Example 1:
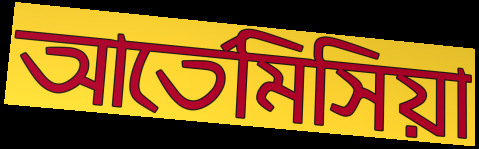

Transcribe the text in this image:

আর্তেমিসিয়া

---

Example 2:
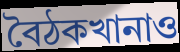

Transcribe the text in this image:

বৈঠকখানাও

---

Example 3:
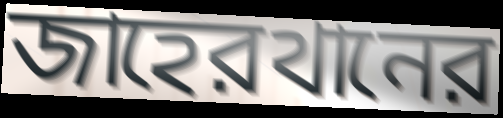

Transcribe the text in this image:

জাহেরথানের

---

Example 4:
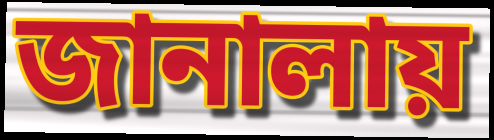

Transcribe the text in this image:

জানালায়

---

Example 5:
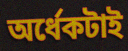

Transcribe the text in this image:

অর্ধেকটাই